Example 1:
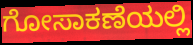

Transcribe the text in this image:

ಗೋಸಾಕಣೆಯಲ್ಲಿ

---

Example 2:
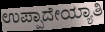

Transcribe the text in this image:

ಉಪ್ಪಾದೇಯ್ಯಾತಿ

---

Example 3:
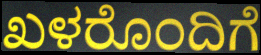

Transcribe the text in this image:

ಖಳರೊಂದಿಗೆ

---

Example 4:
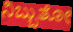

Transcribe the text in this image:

ನಿಬ್ಬುತೋ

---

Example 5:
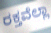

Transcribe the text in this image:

ರಕ್ತವೆಲ್ಲಾ